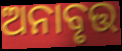
ଅନାବୃତ୍ତ